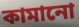
কামানো